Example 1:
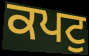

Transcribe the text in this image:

ਕਪਟੁ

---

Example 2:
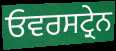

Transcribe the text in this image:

ਓਵਰਸਟ੍ਰੇਨ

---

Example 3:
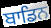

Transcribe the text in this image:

ਬਾਡਿਨ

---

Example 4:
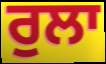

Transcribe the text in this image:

ਰੁਲਾ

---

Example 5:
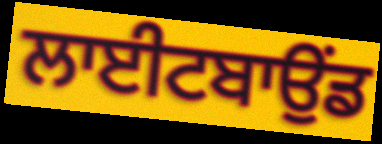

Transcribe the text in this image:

ਲਾਈਟਬਾਉਂਡ